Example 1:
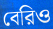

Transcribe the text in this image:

বেরিও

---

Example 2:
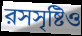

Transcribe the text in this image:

রসসৃষ্টিও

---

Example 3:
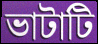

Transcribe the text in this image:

ভাটাটি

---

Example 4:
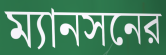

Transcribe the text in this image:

ম্যানসনের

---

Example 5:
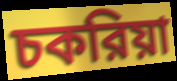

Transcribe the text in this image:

চকরিয়া